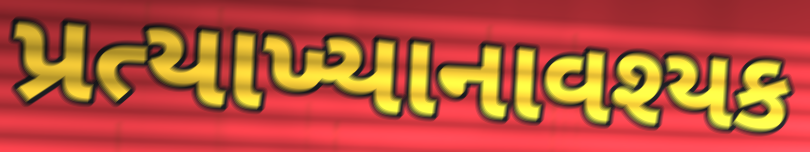
પ્રત્યાખ્યાનાવશ્યક